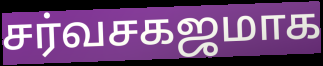
சர்வசகஜமாக